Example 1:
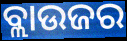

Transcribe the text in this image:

ବ୍ଲାଉଜର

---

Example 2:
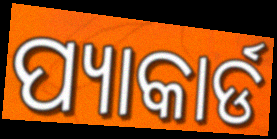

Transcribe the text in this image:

ପ୍ୟାକାର୍ଡ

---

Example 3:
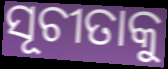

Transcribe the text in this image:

ସୂଚୀତାକୁ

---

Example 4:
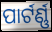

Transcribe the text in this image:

ପାର୍ଟର୍ଣ୍ଣ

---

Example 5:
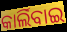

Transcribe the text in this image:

କାର୍ଲିବାଇ